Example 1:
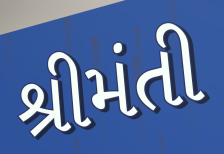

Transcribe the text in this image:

શ્રીમંતી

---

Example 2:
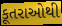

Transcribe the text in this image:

કૂતરાઓથી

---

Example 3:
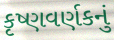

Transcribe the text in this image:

કૃષ્ણવર્ણકનું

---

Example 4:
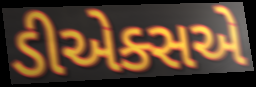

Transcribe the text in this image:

ડીએક્સએ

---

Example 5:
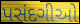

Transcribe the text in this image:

પસંદગીઓ